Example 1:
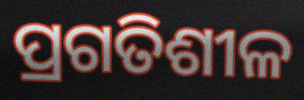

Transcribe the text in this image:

ପ୍ରଗତିଶୀଳ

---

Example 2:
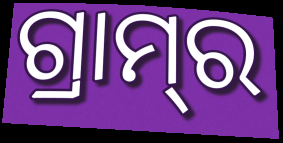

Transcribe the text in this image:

ଗ୍ରାମ୍‌ର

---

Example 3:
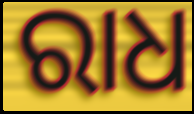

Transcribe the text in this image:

ରାଧ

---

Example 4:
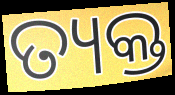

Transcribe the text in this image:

ତ୍ୟକ୍ତ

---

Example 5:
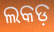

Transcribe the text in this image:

ଲକଡ଼